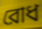
রোধ